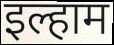
इल्हाम